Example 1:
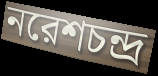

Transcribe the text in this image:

নরেশচন্দ্র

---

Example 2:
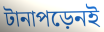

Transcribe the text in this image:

টানাপড়েনই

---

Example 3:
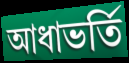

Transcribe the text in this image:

আধাভর্তি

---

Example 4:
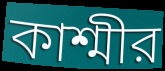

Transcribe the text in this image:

কাশ্মীর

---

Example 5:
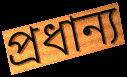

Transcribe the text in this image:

প্রধান্য